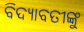
ବିଦ୍ୟାବତୀଙ୍କୁ